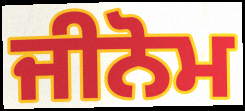
ਜੀਨੋਮ